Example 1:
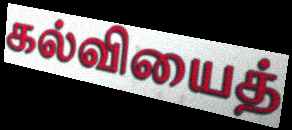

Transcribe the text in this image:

கல்வியைத்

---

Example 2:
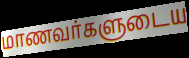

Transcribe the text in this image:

மாணவர்களுடைய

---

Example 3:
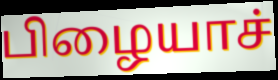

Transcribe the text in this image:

பிழையாச்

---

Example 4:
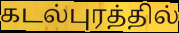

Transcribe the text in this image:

கடல்புரத்தில்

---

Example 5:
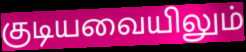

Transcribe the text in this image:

குடியவையிலும்